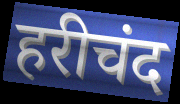
हरीचंद